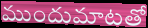
ముందుమాటతో